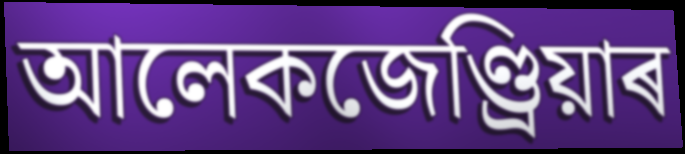
আলেকজেণ্ড্ৰিয়াৰ